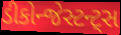
ડીકોન્જેસ્ટન્ટ્સ